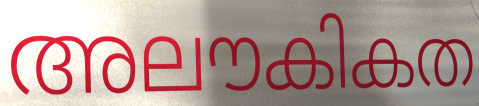
അലൗകികത